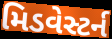
મિડવેસ્ટર્ન